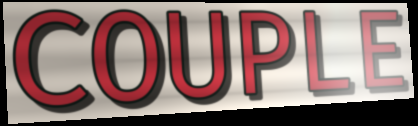
COUPLE